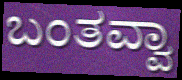
ಬಂತವ್ವಾ